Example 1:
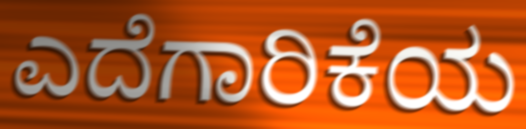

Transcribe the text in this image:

ಎದೆಗಾರಿಕೆಯ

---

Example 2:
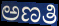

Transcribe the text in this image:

ಅಣತಿ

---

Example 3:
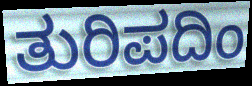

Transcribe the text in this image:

ತುರಿಪದಿಂ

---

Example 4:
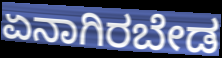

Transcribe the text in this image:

ಏನಾಗಿರಬೇಡ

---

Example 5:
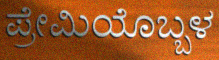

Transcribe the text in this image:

ಪ್ರೇಮಿಯೊಬ್ಬಳ